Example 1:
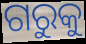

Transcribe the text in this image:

ଗରୁକୁ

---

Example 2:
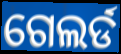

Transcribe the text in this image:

ଗେଲର୍ଡ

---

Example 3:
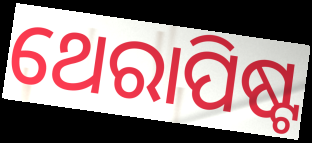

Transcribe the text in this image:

ଥେରାପିଷ୍ଟ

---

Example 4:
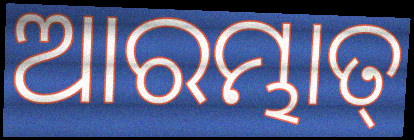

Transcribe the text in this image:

ଆରମ୍ଭାତ୍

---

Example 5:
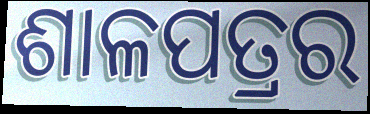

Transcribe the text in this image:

ଶାଳପତ୍ରର